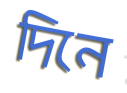
দিনে